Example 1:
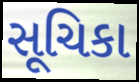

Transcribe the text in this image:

સૂચિકા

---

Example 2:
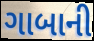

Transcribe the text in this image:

ગાબાની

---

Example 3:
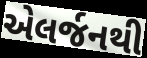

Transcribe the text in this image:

એલર્જનથી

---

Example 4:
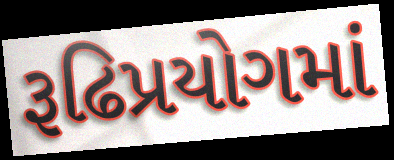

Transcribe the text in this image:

રૂઢિપ્રયોગમાં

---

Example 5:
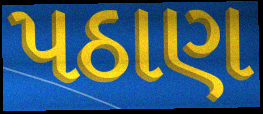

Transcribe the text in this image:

પઠાણ